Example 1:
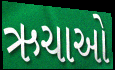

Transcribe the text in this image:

ઋચાઓ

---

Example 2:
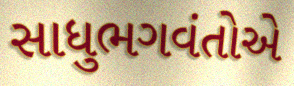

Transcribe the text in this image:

સાધુભગવંતોએ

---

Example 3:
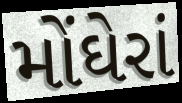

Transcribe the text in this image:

મોંઘેરાં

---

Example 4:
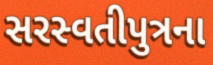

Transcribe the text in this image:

સરસ્વતીપુત્રના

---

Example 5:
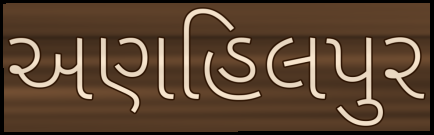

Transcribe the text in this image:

અણહિલપુર